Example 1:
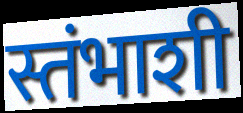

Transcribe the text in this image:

स्तंभाशी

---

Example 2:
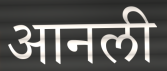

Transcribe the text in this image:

आनली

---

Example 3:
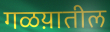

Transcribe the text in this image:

गळय़ातील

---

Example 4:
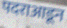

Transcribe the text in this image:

पदराआडून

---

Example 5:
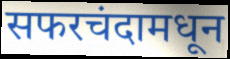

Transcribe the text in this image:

सफरचंदामधून